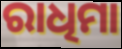
ରାଧିମା